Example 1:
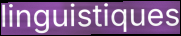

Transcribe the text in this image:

linguistiques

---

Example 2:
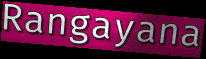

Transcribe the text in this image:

Rangayana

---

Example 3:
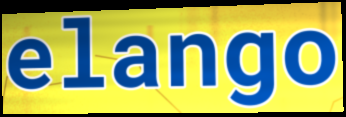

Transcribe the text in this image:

elango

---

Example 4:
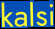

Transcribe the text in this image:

kalsi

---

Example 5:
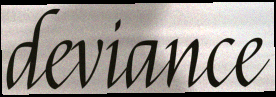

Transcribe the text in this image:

deviance